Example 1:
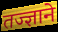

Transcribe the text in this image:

तज्ज्ञाने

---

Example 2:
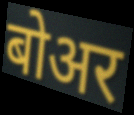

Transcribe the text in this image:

बोअर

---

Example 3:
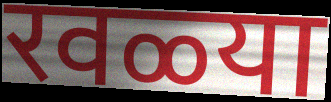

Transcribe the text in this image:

रवळ्या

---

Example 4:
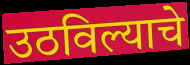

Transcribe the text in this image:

उठविल्याचे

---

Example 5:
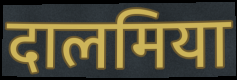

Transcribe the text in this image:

दालमिया